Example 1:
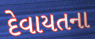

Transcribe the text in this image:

દેવાયતના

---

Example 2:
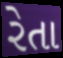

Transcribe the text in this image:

રેતા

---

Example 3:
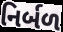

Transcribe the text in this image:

નિર્બળ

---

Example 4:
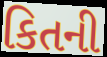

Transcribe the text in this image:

કિતની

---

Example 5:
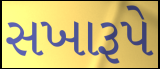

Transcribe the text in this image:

સખારૂપે